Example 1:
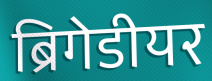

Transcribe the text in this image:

ब्रिगेडीयर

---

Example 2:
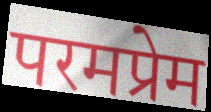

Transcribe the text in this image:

परमप्रेम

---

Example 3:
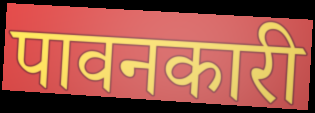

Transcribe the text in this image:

पावनकारी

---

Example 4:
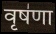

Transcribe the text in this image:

वृष॑णा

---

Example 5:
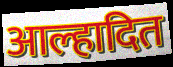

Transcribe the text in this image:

आल्हादित